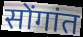
सोंगांत